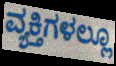
ವ್ಯಕ್ತಿಗಳಲ್ಲೂ